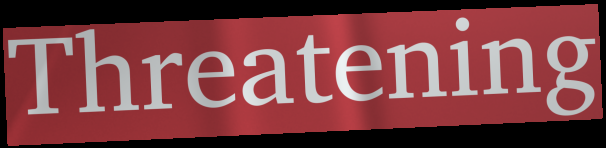
Threatening